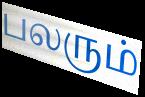
பலரும்